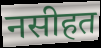
नसीहत